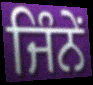
ਜਿੰਨੇਂ